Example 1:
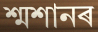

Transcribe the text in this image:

শ্মশানৰ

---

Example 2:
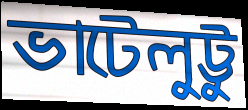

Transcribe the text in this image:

ভাটেলুট্টু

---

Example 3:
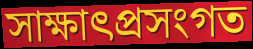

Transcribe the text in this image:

সাক্ষাৎপ্ৰসংগত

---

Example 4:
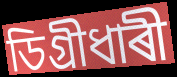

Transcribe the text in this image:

ডিগ্ৰীধাৰী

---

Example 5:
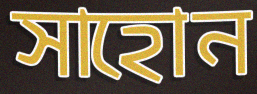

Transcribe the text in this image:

সাহোন